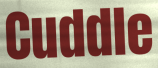
Cuddle